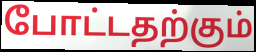
போட்டதற்கும்